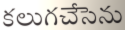
కలుగచేసెను